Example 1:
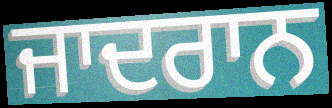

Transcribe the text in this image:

ਜਾਦਰਾਨ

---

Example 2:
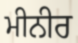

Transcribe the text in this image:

ਮੀਨੀਰ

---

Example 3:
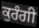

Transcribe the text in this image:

ਕੁਰੰਗੀ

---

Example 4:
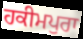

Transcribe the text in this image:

ਹਕੀਮਪੁਰਾ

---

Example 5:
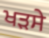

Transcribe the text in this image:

ਖੜਸੇ